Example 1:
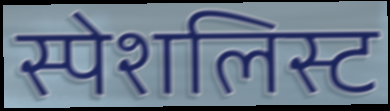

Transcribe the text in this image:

स्पेशलिस्ट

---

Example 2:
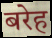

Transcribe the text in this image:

बरेह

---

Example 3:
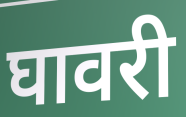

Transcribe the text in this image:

घावरी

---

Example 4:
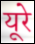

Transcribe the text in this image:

यूरे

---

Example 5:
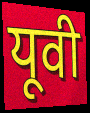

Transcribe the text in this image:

यूवी